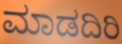
ಮಾಡದಿರಿ